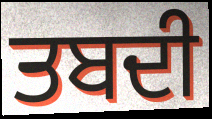
ਤਬਦੀ